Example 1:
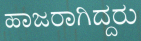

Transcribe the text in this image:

ಹಾಜರಾಗಿದ್ದರು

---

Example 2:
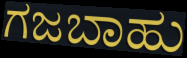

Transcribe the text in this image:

ಗಜಬಾಹು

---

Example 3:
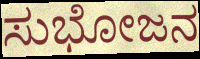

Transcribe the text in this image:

ಸುಭೋಜನ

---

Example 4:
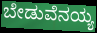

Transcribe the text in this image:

ಬೇಡುವೆನಯ್ಯ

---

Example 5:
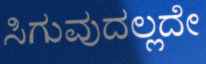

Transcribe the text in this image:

ಸಿಗುವುದಲ್ಲದೇ